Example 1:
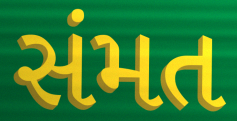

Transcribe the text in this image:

સંમત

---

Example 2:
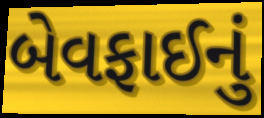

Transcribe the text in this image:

બેવફાઈનું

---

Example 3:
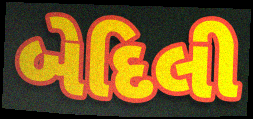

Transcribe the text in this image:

બેદિલી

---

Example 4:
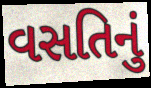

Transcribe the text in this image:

વસતિનું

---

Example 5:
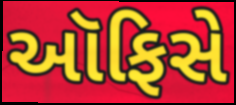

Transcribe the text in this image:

ઑફિસે